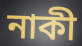
নাকী